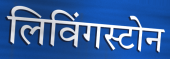
लिविंगस्टोन